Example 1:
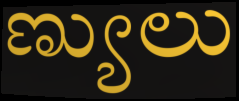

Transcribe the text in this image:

ణ్యులు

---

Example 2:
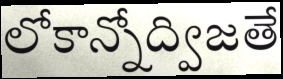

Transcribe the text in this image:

లోకాన్నోద్విజతే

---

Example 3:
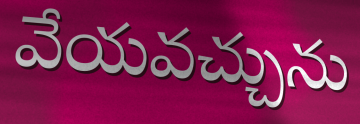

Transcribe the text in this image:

వేయవచ్చును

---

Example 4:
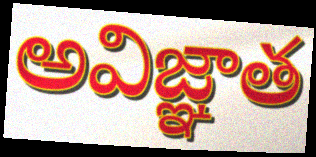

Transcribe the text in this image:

అవిజ్ఞాత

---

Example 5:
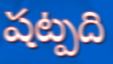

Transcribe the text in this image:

షట్పది